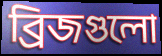
ব্রিজগুলো